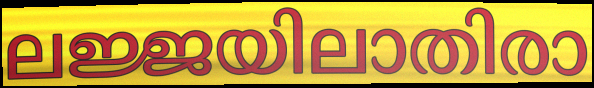
ലജ്ജയിലാതിരാ